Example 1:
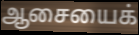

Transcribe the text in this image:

ஆசையைக்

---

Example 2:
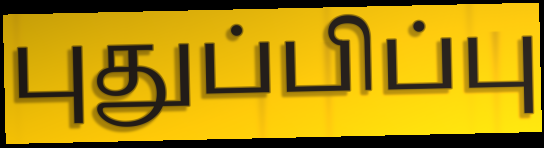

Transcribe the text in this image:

புதுப்பிப்பு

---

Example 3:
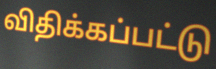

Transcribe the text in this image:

விதிக்கப்பட்டு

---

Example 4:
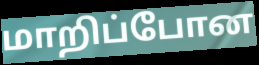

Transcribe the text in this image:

மாறிப்போன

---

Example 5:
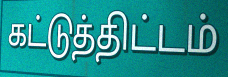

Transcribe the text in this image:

கட்டுத்திட்டம்